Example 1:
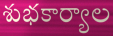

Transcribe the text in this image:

శుభకార్యాల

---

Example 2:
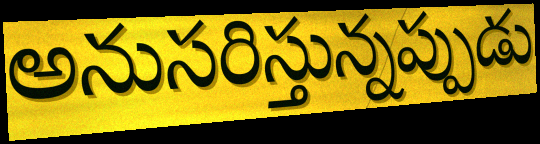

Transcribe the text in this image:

అనుసరిస్తున్నప్పుడు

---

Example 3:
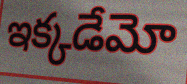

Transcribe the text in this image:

ఇక్కడేమో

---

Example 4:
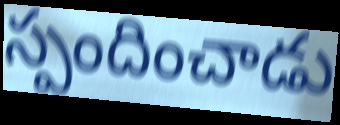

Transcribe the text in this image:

స్పందించాడు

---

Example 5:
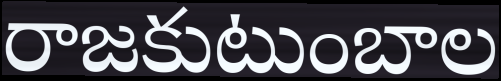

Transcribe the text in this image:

రాజకుటుంబాల